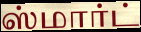
ஸ்மார்ட்